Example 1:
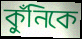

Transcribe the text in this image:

কুঁনিকে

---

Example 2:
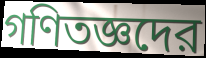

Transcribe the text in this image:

গণিতজ্ঞদের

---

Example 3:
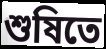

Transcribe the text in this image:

শুষিতে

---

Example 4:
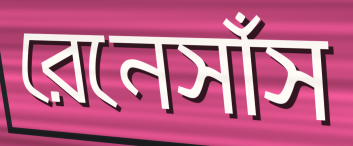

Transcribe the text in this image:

রেনেসাঁস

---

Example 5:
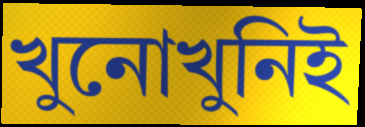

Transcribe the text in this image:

খুনোখুনিই